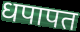
धपापत